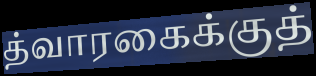
த்வாரகைக்குத்